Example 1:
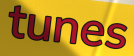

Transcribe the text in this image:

tunes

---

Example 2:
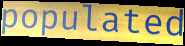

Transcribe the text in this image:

populated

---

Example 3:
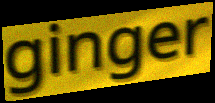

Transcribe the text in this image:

ginger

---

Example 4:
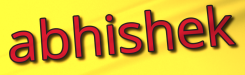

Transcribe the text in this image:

abhishek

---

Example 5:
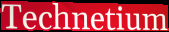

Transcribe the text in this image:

Technetium